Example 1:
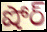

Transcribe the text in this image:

షోర్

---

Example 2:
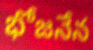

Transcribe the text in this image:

భోజనేన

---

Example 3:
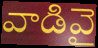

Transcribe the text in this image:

వాడివై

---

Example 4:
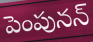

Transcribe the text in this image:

పెంపునన్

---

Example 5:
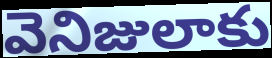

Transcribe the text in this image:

వెనిజులాకు